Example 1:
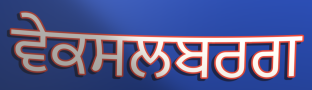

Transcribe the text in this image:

ਵੇਕਸਲਬਰਗ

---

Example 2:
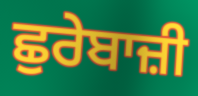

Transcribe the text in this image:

ਛੁਰੇਬਾਜ਼ੀ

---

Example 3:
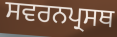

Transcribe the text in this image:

ਸਵਰਨਪ੍ਰਸਥ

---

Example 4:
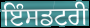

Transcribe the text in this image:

ਇੰਸਡਟਰੀ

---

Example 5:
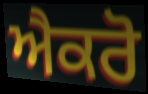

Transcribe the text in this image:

ਐਕਰੋ